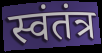
स्वंतंत्र